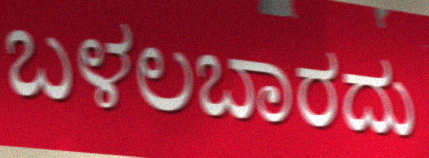
ಬಳಲಬಾರದು